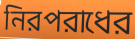
নিরপরাধের